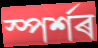
স্পৰ্শৰ